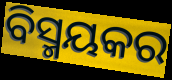
ବିସ୍ମୟକର